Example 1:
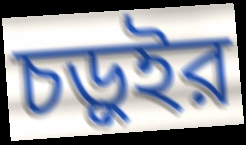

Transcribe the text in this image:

চড়ুইর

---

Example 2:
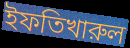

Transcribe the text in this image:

ইফতিখারুল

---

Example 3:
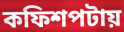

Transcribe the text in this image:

কফিশপটায়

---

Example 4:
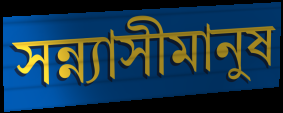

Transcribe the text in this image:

সন্ন্যাসীমানুষ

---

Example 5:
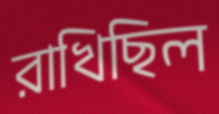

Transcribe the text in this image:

রাখিছিল